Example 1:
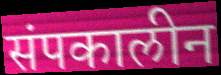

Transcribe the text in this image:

संपकालीन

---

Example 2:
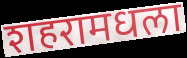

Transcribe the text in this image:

शहरामधला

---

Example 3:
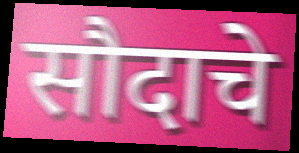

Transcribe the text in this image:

सौदाचे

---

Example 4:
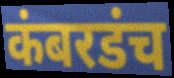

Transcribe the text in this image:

कंबरडंच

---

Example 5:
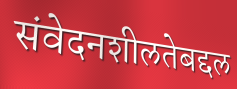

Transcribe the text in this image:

संवेदनशीलतेबद्दल